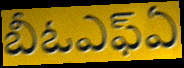
బీఓఎఫ్ఏ